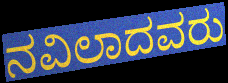
ನವಿಲಾದವರು